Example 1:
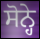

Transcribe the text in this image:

ਸੋਨ੍ਹੇ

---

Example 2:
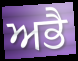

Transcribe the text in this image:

ਅਭੈ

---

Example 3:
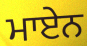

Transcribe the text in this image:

ਮਾਏਨ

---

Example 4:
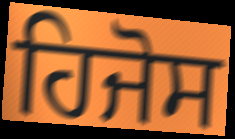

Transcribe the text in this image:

ਹਿਜੋਸ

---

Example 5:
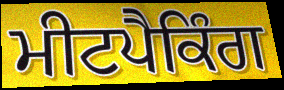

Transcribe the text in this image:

ਮੀਟਪੈਕਿੰਗ